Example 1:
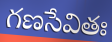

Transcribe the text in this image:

గణసేవితః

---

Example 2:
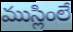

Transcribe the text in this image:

ముస్లింలే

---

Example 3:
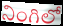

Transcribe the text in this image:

నింగిలో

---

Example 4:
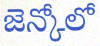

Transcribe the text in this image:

జెన్కోలో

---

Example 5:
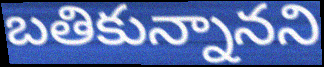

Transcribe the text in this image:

బతికున్నానని